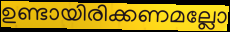
ഉണ്ടായിരിക്കണമല്ലോ